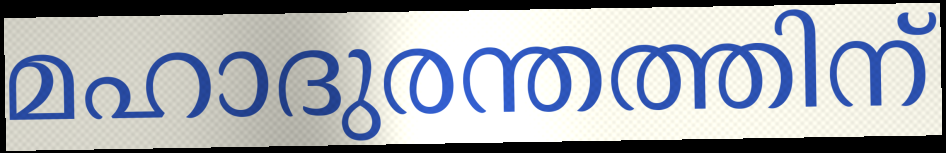
മഹാദുരന്തത്തിന്